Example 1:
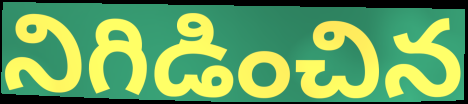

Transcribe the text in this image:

నిగిడించిన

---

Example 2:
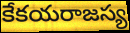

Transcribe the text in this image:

కేకయరాజస్య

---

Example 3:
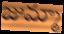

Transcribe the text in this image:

జుమ్మా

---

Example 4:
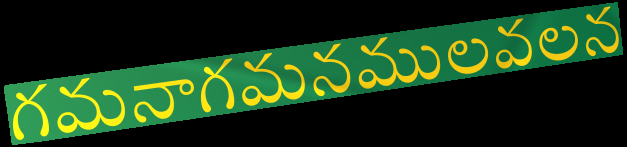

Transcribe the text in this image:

గమనాగమనములవలన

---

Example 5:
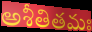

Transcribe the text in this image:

అశీతితమః